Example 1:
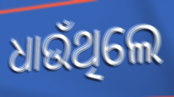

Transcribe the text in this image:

ଧାଉଁଥିଲେ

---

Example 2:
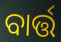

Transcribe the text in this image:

ବାର୍ତ୍ତ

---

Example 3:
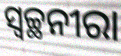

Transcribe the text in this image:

ସ୍ବଚ୍ଛନୀରା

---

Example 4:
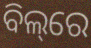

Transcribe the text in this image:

ବିଲ୍‌ରେ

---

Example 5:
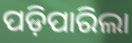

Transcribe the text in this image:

ପଡ଼ିପାରିଲା